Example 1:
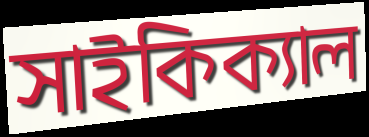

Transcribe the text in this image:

সাইকিক্যাল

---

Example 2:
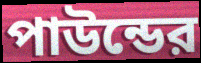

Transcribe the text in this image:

পাউন্ডের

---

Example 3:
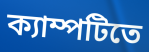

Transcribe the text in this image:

ক্যাম্পটিতে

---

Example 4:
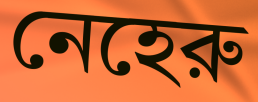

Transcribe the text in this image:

নেহেরু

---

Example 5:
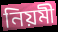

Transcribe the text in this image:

নিয়মী